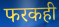
फरकही